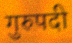
गुरुपदी